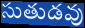
సుతుడవు